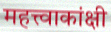
महत्त्वाकांक्षी